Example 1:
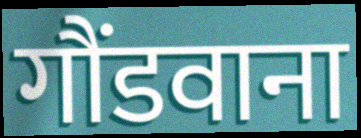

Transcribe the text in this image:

गौंडवाना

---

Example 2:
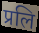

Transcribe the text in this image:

प्रलि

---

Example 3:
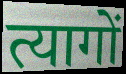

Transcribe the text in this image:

त्यागों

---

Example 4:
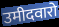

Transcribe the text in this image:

उमीदवारो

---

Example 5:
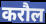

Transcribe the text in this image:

करौल